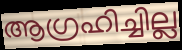
ആഗ്രഹിച്ചില്ല